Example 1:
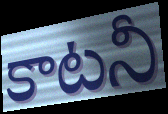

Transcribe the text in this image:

కాటనీ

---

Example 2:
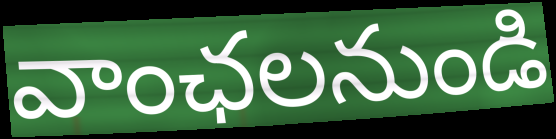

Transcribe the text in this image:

వాంఛలనుండి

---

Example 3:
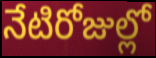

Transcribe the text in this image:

నేటిరోజుల్లో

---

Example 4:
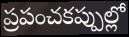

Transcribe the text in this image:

ప్రపంచకప్పుల్లో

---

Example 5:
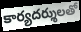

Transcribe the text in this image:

కార్యదర్శులతో